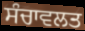
ਸੰਚਾਵਲਤ